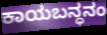
ಕಾಯಬನ್ಧನಂ